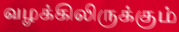
வழக்கிலிருக்கும்